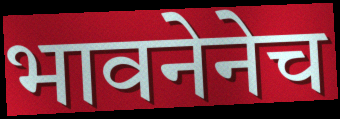
भावनेनेच